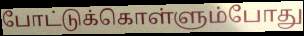
போட்டுக்கொள்ளும்போது